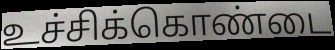
உச்சிக்கொண்டை